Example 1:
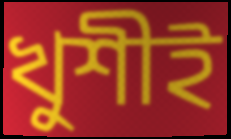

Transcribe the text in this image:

খুশীই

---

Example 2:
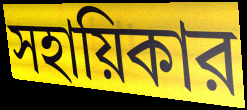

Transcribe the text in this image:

সহায়িকার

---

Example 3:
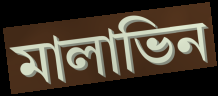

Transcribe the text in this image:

মালাভিন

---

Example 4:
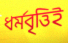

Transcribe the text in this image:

ধর্মবৃত্তিই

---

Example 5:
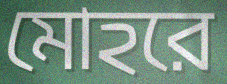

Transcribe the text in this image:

মোহরে